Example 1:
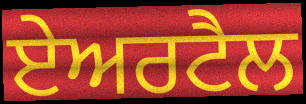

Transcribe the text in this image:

ਏਅਰਟੈਲ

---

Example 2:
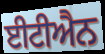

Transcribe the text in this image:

ਈਟੀਐਨ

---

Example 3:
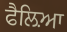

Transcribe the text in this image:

ਫੈਲ਼ਿਆ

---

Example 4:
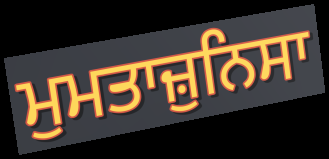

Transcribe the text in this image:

ਮੁਮਤਾਜ਼ੁਨਿਸਾ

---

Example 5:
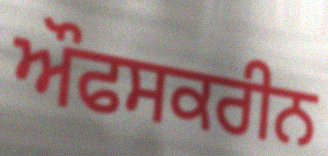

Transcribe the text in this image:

ਔਫਸਕਰੀਨ